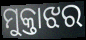
ମୁକ୍ତାଝର